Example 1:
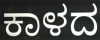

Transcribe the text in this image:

ಕಾಳದ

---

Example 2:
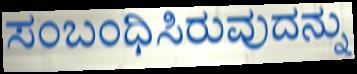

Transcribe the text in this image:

ಸಂಬಂಧಿಸಿರುವುದನ್ನು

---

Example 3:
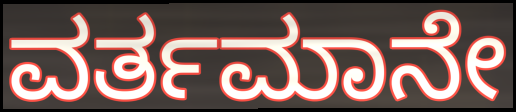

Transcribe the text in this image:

ವರ್ತಮಾನೇ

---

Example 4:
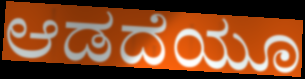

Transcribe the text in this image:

ಆಡದೆಯೂ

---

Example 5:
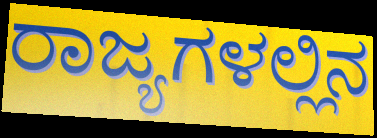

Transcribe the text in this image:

ರಾಜ್ಯಗಳಲ್ಲಿನ